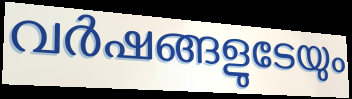
വർഷങ്ങളുടേയും